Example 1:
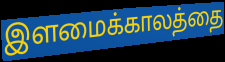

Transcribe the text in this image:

இளமைக்காலத்தை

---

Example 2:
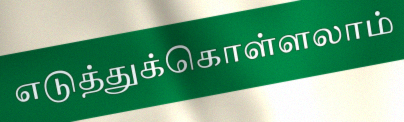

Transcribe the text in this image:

எடுத்துக்கொள்ளலாம்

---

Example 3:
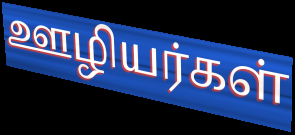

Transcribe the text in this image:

ஊழியர்கள்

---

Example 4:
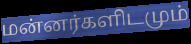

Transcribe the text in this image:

மன்னர்களிடமும்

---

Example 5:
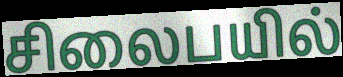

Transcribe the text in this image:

சிலைபயில்